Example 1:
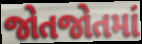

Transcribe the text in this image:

જોતજોતમાં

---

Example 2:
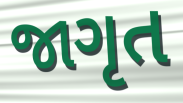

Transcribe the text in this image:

જાગૃત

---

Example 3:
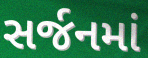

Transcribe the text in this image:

સર્જનમાં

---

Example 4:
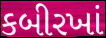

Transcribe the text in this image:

કબીરખાં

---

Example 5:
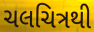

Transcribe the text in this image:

ચલચિત્રથી